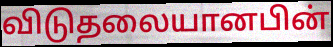
விடுதலையானபின்